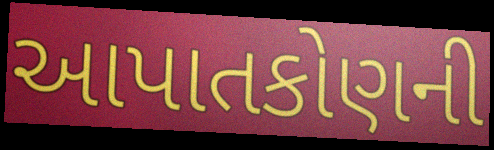
આપાતકોણની